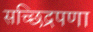
सच्छिद्रपणा